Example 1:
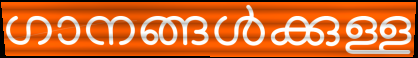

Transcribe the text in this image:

ഗാനങ്ങൾക്കുള്ള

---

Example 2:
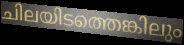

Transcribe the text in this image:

ചിലയിടത്തെങ്കിലും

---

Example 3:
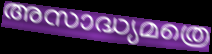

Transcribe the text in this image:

അസാദ്ധ്യമത്രെ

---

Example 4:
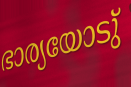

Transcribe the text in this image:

ഭാര്യയോടു്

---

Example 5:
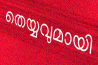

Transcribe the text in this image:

തെയ്യവുമായി